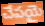
చేపయై